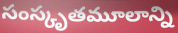
సంస్కృతమూలాన్ని